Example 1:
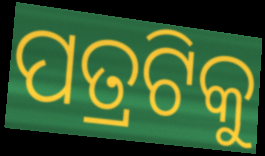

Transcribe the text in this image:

ପତ୍ରଟିକୁ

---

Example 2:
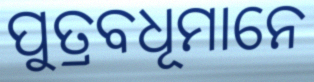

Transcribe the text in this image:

ପୁତ୍ରବଧୂମାନେ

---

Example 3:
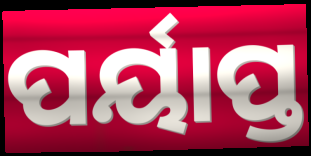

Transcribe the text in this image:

ପର୍ୟାପ୍ତ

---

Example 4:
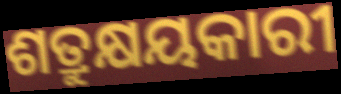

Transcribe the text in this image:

ଶତ୍ରୁକ୍ଷୟକାରୀ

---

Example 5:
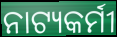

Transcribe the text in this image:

ନାଟ୍ୟକର୍ମୀ